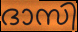
ദാസി